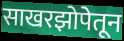
साखरझोपेतून